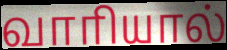
வாரியால்